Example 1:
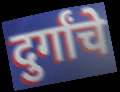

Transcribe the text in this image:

दुर्गांचे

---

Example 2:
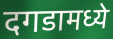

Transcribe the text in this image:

दगडामध्ये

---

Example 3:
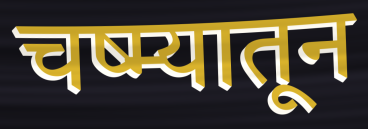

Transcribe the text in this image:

चष्म्यातून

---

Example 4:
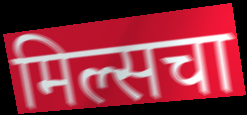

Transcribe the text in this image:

मिल्सचा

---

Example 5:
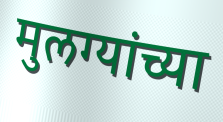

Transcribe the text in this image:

मुलग्यांच्या